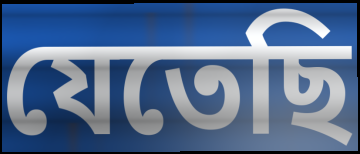
যেতেছি